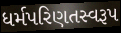
ધર્મપરિણતસ્વરૂપ